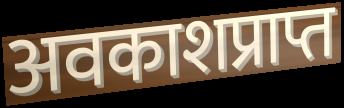
अवकाशप्राप्त